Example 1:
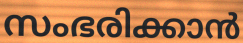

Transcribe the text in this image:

സംഭരിക്കാൻ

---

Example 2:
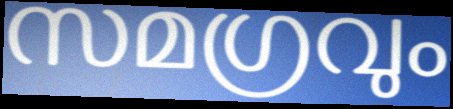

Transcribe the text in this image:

സമഗ്രവും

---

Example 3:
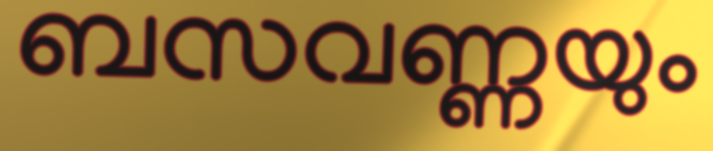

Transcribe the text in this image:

ബസവണ്ണയും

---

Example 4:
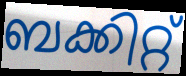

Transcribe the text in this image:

ബക്കിറ്റ്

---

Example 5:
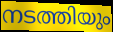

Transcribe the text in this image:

നടത്തിയും